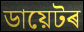
ডায়েটৰ